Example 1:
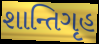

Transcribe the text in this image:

શાન્તિગૃહ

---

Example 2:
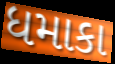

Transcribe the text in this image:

ધમાકા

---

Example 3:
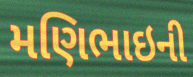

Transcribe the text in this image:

મણિભાઇની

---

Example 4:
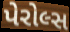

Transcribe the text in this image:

પેરોલ્સ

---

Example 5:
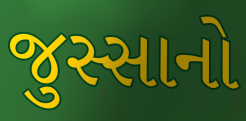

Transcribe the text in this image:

જુસ્સાનો